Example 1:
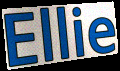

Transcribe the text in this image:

Ellie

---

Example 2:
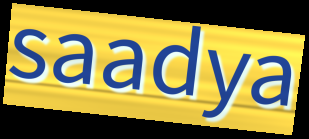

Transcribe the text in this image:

saadya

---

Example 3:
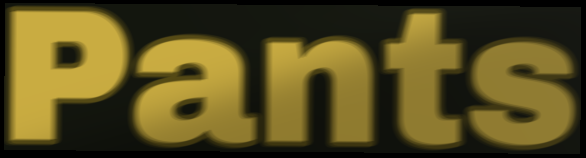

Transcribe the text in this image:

Pants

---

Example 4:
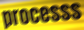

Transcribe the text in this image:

processs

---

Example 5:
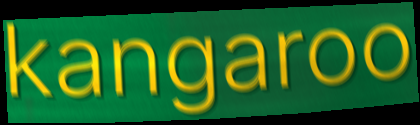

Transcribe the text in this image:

kangaroo